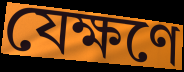
যেক্ষণে